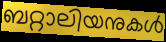
ബറ്റാലിയനുകൾ